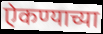
ऐकण्याच्या